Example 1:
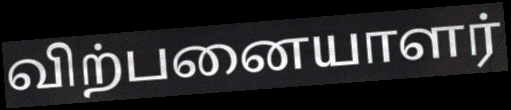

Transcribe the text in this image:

விற்பனையாளர்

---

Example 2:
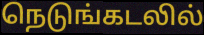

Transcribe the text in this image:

நெடுங்கடலில்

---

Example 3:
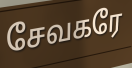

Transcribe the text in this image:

சேவகரே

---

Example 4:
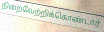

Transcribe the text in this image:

நிறைவேற்றிக்கொண்டார்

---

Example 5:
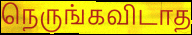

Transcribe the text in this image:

நெருங்கவிடாத